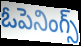
ఓపెనింగ్స్